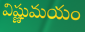
విష్ణుమయం